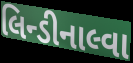
લિન્ડીનાલ્વા